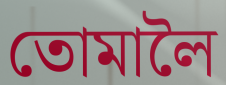
তোমালৈ